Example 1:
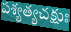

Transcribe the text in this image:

పశ్యత్యచక్షుః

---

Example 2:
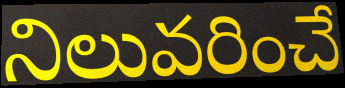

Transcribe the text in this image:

నిలువరించే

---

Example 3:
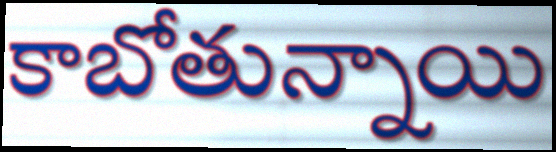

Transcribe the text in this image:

కాబోతున్నాయి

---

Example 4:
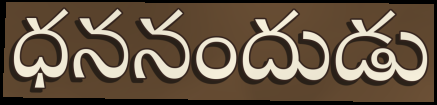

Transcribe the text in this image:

ధననందుడు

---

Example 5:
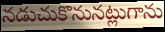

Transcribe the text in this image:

నడుచుకొనునట్లుగాను